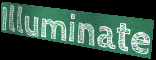
Illuminate